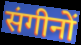
संगीनों